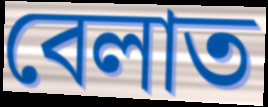
বেলাত